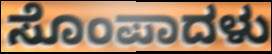
ಸೊಂಪಾದಳು